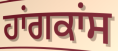
ਹਾਂਗਕਾਂਸ